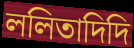
ললিতাদিদি